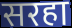
सरहा